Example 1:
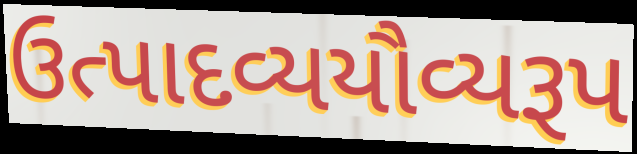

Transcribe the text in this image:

ઉત્પાદવ્યયૌવ્યરૂપ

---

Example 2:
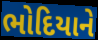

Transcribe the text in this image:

ભોદિયાને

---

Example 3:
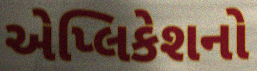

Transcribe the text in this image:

એપ્લિકેશનો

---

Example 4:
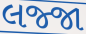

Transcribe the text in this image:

લજ્જા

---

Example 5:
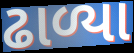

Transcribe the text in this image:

ઢાળ્યા